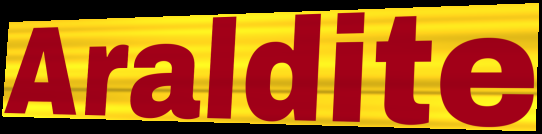
Araldite